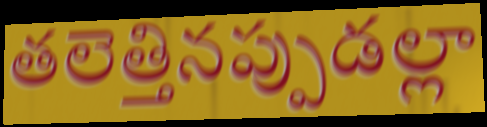
తలెత్తినప్పుడల్లా